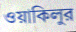
ওয়াকিলুর